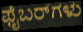
ಫೈಬರ್‌ಗಳು